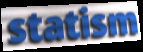
statism